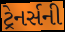
ટ્રેનર્સની